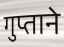
गुप्ताने